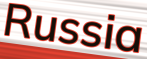
Russia